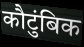
कौटुंबिक